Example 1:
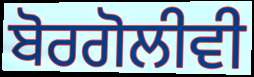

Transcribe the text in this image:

ਬੋਰਗੋਲੀਵੀ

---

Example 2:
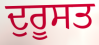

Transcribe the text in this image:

ਦੁਰੂਸਤ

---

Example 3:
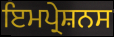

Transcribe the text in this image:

ਇਮਪ੍ਰੇਸ਼ਨਸ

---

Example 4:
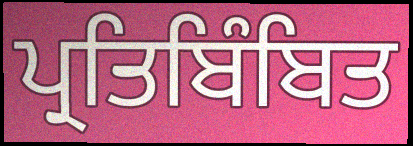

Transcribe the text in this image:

ਪ੍ਰਤਿਬਿੰਬਿਤ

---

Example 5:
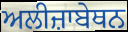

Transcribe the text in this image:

ਅਲੀਜ਼ਾਬੇਥਨ